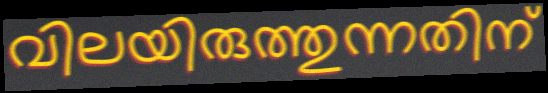
വിലയിരുത്തുന്നതിന്